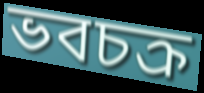
ভবচক্র